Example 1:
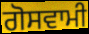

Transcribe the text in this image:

ਗੋਸਵਾਮੀ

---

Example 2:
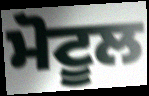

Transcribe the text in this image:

ਮੋਟੂਲ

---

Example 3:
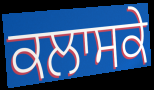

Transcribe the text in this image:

ਕਲਾਸਕੇ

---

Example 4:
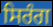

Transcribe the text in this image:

ਸਿਰੰਗ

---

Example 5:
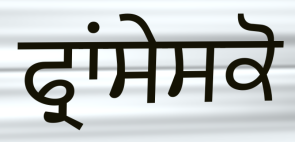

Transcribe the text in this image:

ਫ੍ਰਾਂਸੇਸਕੋ